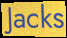
Jacks